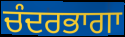
ਚੰਦਰਭਾਗਾ